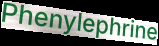
Phenylephrine